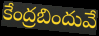
కేంద్రబిందువే